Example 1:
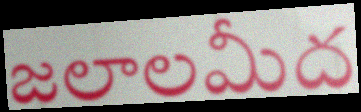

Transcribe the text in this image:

జలాలమీద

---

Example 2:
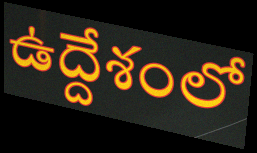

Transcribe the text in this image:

ఉద్దేశంలో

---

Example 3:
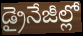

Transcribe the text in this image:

డ్రైనేజీల్లో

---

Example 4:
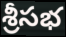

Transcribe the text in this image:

శ్రీసభ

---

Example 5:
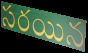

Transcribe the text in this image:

సరయిన